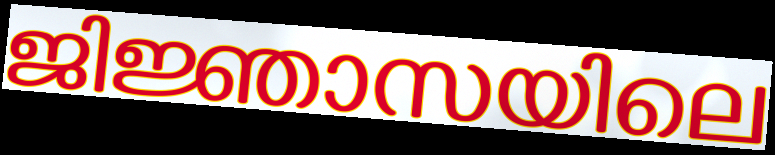
ജിജ്ഞാസയിലെ